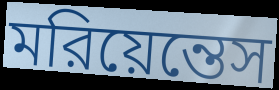
মরিয়েন্তেস